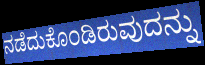
ನಡೆದುಕೊಂಡಿರುವುದನ್ನು